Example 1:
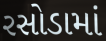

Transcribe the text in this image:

રસોડામાં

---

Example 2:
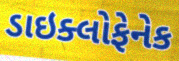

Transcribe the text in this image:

ડાઇક્લોફેનેક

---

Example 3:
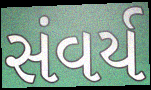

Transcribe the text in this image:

સંવર્ય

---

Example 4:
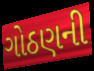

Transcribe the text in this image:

ગોઠણની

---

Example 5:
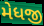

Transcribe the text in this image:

મેધજી